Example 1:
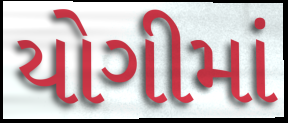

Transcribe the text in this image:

યોગીમાં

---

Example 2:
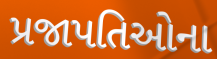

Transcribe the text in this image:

પ્રજાપતિઓના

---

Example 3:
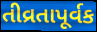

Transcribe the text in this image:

તીવ્રતાપૂર્વક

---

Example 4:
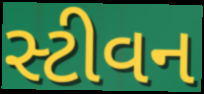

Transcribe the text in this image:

સ્ટીવન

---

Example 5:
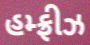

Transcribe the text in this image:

હમ્ફ્રીઝ